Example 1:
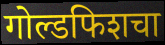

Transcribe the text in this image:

गोल्डफिशचा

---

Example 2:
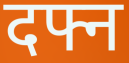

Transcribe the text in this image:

दफ्न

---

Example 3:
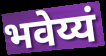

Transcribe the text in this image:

भवेय्यं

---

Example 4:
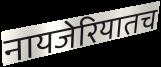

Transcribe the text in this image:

नायजेरियातच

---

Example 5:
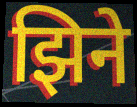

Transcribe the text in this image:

झिने